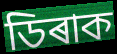
ডিৰাক